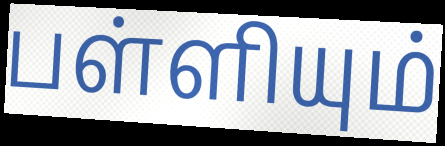
பள்ளியும்